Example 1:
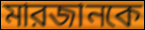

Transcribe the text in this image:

মারজানকে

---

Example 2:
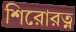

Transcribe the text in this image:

শিরোরত্ন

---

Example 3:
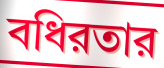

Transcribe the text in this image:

বধিরতার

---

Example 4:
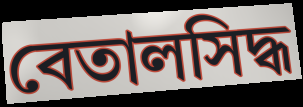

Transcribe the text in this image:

বেতালসিদ্ধ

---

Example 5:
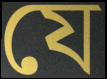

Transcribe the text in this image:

যে